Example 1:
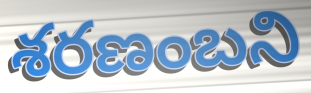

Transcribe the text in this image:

శరణంబని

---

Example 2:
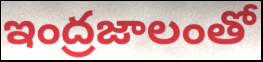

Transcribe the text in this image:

ఇంద్రజాలంతో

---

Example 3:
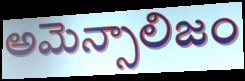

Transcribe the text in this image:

అమెన్సాలిజం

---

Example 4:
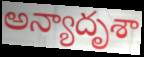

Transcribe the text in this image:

అన్యాదృశా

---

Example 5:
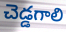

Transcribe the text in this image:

చెడ్డగాలి